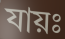
যায়ঃ